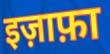
इज़ाफ़ा